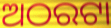
ଅଠରଟା